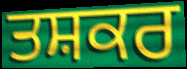
ਤਸ਼ਕਰ